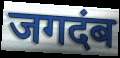
जगदंब